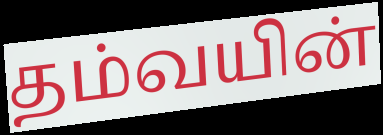
தம்வயின்